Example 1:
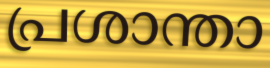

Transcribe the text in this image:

പ്രശാന്താ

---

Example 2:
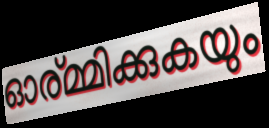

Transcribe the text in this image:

ഓര്മ്മിക്കുകയും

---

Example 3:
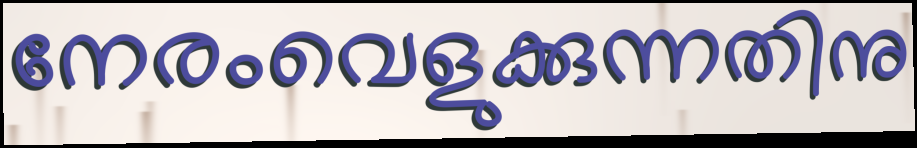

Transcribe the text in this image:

നേരംവെളുക്കുന്നതിനു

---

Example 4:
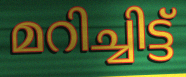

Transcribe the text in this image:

മറിച്ചിട്ട്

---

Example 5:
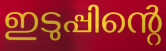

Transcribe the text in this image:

ഇടുപ്പിന്റെ